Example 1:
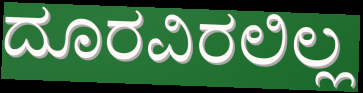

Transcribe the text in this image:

ದೂರವಿರಲಿಲ್ಲ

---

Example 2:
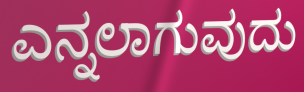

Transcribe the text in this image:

ಎನ್ನಲಾಗುವುದು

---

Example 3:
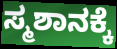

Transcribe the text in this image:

ಸ್ಮಶಾನಕ್ಕೆ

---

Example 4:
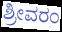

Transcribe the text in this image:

ಶ್ರೀವರಂ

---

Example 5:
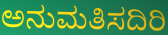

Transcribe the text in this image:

ಅನುಮತಿಸದಿರಿ